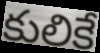
కులికే